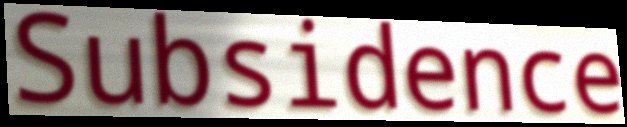
Subsidence